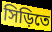
সিড়িতে